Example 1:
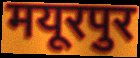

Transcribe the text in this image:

मयूरपुर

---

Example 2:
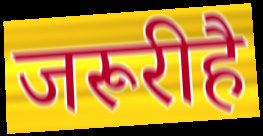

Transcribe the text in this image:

जरूरीहै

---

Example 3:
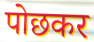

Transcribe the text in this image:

पोछकर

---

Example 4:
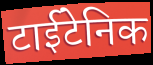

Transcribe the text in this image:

टाईटेनिक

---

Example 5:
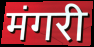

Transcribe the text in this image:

मंगरी